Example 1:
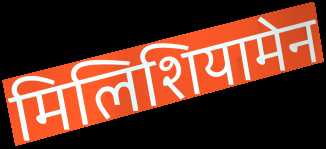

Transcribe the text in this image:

मिलिशियामेन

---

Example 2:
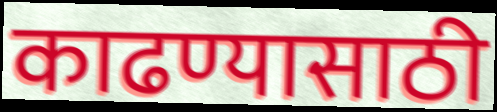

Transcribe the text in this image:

काढण्यासाठी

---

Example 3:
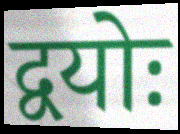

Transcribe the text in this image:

द्वयोः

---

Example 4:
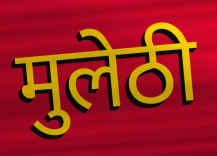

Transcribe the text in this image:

मुलेठी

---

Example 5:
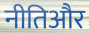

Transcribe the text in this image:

नीतिऔर